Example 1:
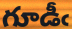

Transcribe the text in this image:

గూడీఁ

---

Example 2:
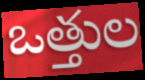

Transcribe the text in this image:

ఒత్తుల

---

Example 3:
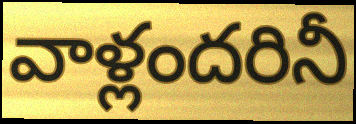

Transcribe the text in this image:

వాళ్లందరినీ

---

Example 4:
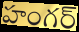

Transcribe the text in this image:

హంగర్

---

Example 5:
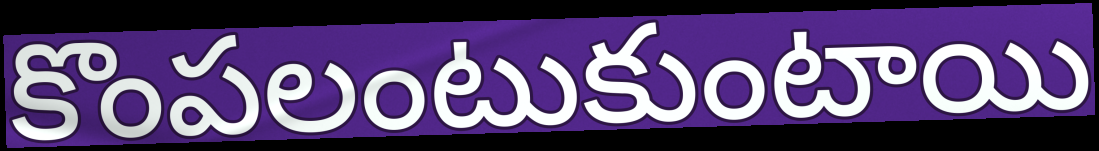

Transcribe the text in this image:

కొంపలంటుకుంటాయి